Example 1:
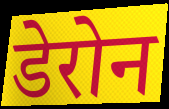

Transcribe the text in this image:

डेरोन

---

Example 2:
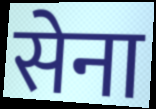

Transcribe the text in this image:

सेना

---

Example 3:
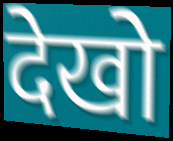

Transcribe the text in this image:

देखो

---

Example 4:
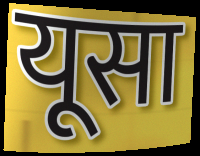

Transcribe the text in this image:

यूसा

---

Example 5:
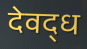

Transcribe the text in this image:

देवद्ध